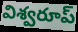
విశ్వరూప్